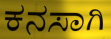
ಕನಸಾಗಿ